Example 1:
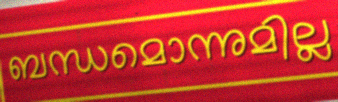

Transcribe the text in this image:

ബന്ധമൊന്നുമില്ല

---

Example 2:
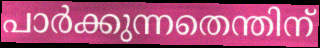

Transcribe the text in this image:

പാർക്കുന്നതെന്തിന്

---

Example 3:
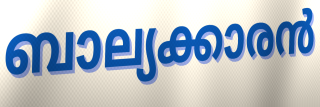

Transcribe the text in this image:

ബാല്യക്കാരൻ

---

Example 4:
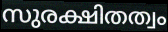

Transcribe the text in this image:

സുരക്ഷിതത്വം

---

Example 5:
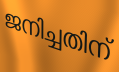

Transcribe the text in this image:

ജനിച്ചതിന്